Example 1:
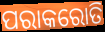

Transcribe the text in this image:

ପରାକରୋତି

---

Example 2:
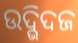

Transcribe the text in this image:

ଉଦ୍ଭିଦଜ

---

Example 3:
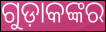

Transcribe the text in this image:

ଗୁଡ଼ାକଙ୍କର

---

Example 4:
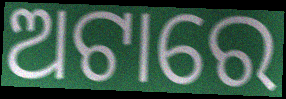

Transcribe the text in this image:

ଅଟାରେ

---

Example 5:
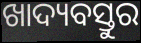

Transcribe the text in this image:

ଖାଦ୍ୟବସ୍ତୁର